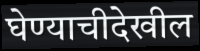
घेण्याचीदेखील